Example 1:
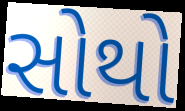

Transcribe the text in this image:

સોથો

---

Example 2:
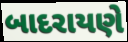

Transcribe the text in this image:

બાદરાયણે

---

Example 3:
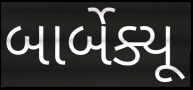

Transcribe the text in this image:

બાર્બેક્યૂ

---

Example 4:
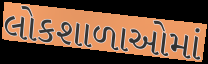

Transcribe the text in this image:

લોકશાળાઓમાં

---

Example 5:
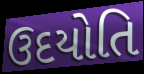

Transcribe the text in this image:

ઉદયોતિ